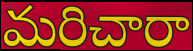
మరిచారా